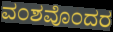
ವಂಶವೊಂದರ